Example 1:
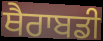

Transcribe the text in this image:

ਥੈਰਾਬਡੀ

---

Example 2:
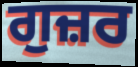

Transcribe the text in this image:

ਗੁਜ਼ਰ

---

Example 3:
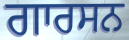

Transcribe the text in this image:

ਗਾਰਸਨ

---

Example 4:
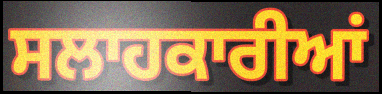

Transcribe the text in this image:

ਸਲਾਹਕਾਰੀਆਂ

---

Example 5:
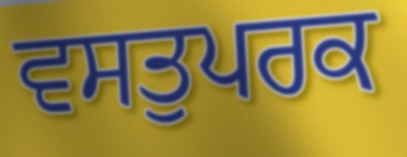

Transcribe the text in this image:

ਵਸਤੁਪਰਕ